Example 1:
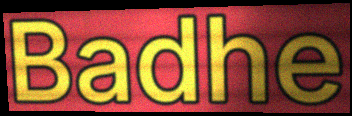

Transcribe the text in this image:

Badhe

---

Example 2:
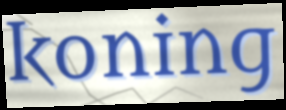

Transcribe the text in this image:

koning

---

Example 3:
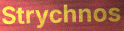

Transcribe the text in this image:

Strychnos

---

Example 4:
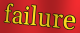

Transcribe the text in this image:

failure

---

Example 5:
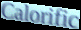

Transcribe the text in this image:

Calorific